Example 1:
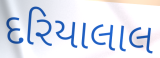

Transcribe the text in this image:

દરિયાલાલ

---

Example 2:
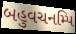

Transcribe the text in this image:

બહુવચનમ્પિ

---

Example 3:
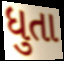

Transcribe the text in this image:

ધુતા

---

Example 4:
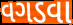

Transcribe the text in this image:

વગડવા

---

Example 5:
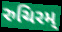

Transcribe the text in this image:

રુચિરમ્